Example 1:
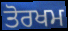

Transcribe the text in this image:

ਤੋਰਖਮ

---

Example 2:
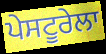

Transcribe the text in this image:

ਪੇਸਟੂਰੇਲਾ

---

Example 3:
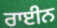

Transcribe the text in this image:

ਰਾਈਨ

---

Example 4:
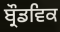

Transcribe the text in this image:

ਬ੍ਰੌਡਵਿਕ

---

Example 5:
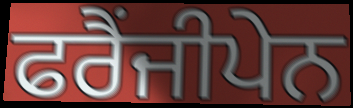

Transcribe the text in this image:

ਫਰੈਂਜੀਪੇਨ